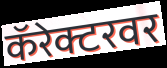
कॅरेक्टरवर